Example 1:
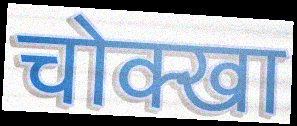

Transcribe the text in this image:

चोक्खा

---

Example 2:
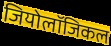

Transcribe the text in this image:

जियोलॉजिकल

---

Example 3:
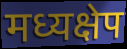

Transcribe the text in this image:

मध्यक्षेप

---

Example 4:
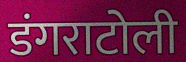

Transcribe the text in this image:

डंगराटोली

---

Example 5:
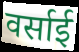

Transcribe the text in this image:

वर्साई